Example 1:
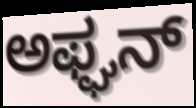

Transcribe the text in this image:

ಅಫ್ಘನ್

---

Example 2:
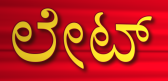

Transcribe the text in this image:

ಲೇಟ್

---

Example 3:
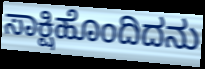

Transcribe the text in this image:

ಸಾಕ್ಷಿಹೊಂದಿದನು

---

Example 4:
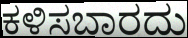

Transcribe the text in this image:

ಕಳಿಸಬಾರದು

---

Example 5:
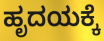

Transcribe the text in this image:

ಹೃದಯಕ್ಕೆ